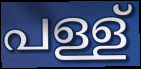
പള്ള്